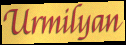
Urmilyan